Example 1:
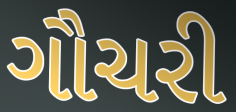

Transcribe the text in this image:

ગૌચરી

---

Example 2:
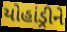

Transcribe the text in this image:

યોહાંડ્રીને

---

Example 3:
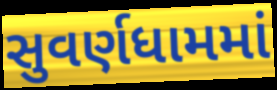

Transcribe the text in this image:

સુવર્ણધામમાં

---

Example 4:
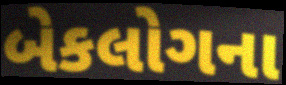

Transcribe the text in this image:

બેકલોગના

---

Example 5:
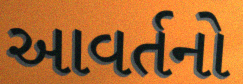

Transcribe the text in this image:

આવર્તનો